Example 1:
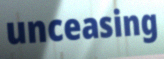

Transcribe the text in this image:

unceasing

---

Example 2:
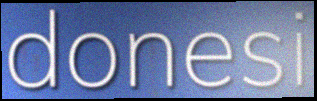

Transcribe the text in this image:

donesi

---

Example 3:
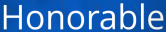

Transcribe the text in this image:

Honorable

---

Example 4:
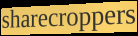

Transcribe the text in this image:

sharecroppers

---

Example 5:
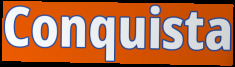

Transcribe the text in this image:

Conquista